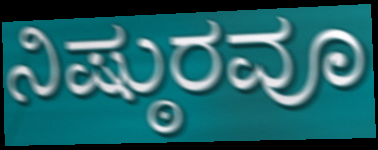
ನಿಷ್ಠುರವೂ